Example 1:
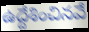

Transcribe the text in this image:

ఉద్దేశించినవే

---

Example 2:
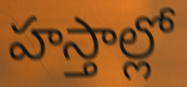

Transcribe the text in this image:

హస్తాల్లో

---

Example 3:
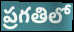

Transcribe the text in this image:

ప్రగతిలో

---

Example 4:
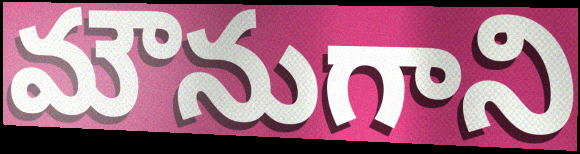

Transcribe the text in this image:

మౌనుగాని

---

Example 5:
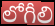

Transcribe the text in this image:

లోగీలి